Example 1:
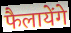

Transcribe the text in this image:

फैलायेंगे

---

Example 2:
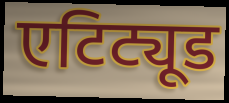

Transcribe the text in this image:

एटिट्यूड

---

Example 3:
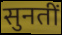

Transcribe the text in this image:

सुनतीं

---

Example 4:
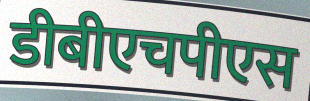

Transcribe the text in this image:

डीबीएचपीएस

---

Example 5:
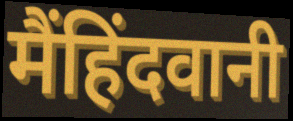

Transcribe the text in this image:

मैंहिंदवानी